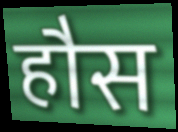
हौस